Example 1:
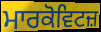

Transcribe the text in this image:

ਮਾਰਕੋਵਿਟਜ਼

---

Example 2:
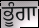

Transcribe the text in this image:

ਭੂੰਗਾ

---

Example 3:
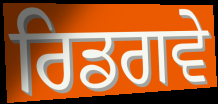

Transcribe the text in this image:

ਰਿਡਗਵੇ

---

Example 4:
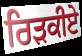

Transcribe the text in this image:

ਰਿੜਕੀਏ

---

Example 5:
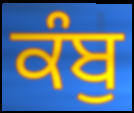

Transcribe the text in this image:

ਕੰਬੁ